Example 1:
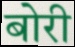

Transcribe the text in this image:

बोरी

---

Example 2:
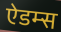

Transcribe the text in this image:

ऐडम्स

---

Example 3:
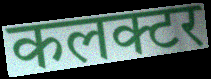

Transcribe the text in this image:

कलक्‍टर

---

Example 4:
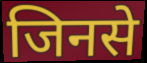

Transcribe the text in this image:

जिनसे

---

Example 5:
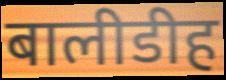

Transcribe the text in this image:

बालीडीह